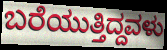
ಬರೆಯುತ್ತಿದ್ದವಳು